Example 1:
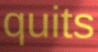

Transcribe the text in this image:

quits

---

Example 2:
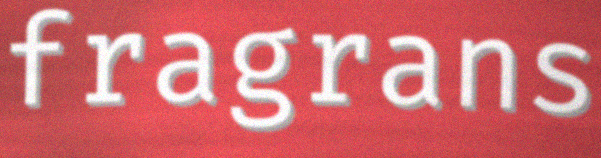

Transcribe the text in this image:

fragrans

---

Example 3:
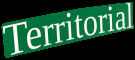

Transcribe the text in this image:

Territorial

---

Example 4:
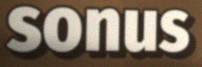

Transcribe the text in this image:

sonus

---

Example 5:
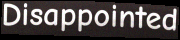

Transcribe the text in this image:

Disappointed